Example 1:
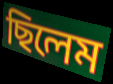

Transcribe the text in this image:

ছিলেম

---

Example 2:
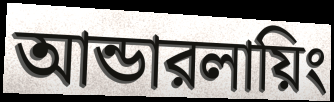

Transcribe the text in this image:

আন্ডারলায়িং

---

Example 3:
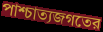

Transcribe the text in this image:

পাশ্চাত্যজগতের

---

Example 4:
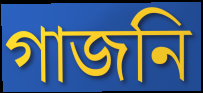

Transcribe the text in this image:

গাজনি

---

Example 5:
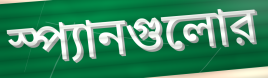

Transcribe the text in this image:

স্প্যানগুলোর